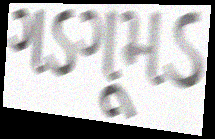
ગડગૂમડ